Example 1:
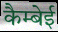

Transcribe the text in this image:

कैम्बेई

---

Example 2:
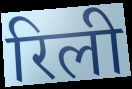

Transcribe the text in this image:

रिली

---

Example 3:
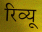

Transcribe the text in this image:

रिव्यू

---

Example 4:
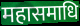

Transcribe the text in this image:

महासमाधि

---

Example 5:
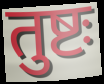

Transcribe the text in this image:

तुष्टः